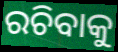
ରଚିବାକୁ